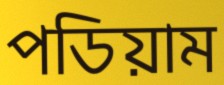
পডিয়াম